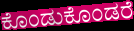
ಕೊಂಡುಕೊಂಡರೆ